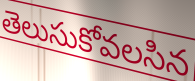
తెలుసుకోవలసిన